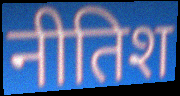
नीतिश